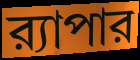
র‍্যাপার